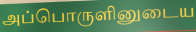
அப்பொருளினுடைய